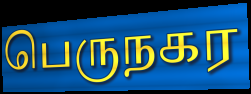
பெருநகர